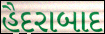
હૈદરાબાદ